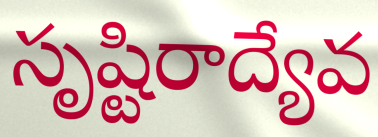
సృష్టిరాద్యేవ